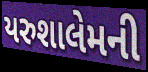
યરુશાલેમની